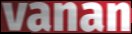
vanan